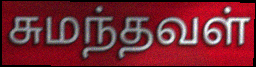
சுமந்தவள்